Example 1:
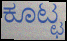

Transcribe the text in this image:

ಕೂಟ್ಟ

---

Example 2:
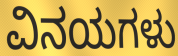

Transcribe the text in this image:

ವಿನಯಗಳು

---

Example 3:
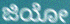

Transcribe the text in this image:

ಜಿಯೋ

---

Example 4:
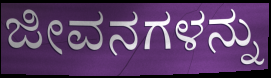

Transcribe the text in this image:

ಜೀವನಗಳನ್ನು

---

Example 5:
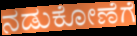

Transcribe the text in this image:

ನಡುಕೋಣೆಗೆ